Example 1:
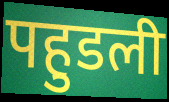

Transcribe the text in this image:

पहुडली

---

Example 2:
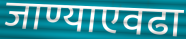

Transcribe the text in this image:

जाण्याएवढा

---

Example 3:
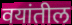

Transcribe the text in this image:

वयांतील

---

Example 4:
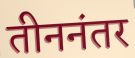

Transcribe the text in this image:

तीननंतर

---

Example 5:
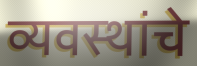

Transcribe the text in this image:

व्यवस्थांचे